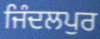
ਜਿੰਦਲਪੁਰ